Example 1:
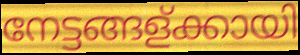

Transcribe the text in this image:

നേട്ടങ്ങള്ക്കായി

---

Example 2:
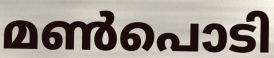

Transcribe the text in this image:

മൺപൊടി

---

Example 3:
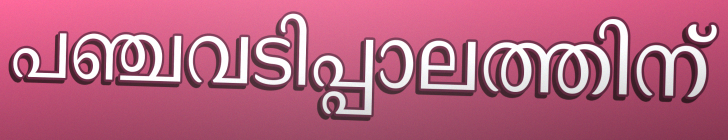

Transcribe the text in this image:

പഞ്ചവടിപ്പാലത്തിന്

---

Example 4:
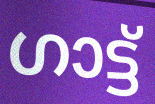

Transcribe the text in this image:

ഗാട്ട്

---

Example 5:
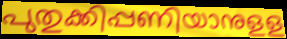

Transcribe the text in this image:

പുതുക്കിപ്പണിയാനുളള